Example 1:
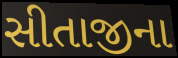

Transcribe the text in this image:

સીતાજીના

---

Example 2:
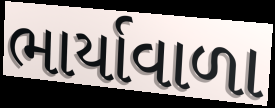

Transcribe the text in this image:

ભાર્યાવાળા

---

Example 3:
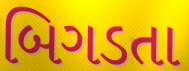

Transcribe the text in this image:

બિગડતા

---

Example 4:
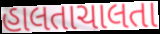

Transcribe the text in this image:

હાલતાચાલતા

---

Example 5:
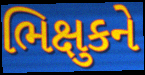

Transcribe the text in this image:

ભિક્ષુકને